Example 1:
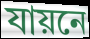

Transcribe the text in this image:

যায়নে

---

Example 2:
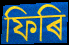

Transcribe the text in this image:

ফিৰি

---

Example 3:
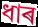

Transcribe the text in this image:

ধাৰ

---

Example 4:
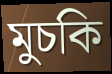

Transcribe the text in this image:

মুচকি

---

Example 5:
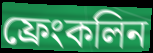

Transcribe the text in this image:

ফ্ৰেংকলিন